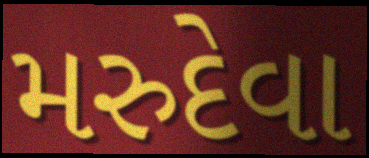
મરુદેવા